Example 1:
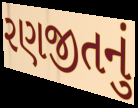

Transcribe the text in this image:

રણજીતનું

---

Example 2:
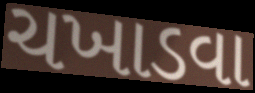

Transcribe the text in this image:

ચખાડવા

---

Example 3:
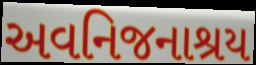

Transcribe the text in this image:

અવનિજનાશ્રય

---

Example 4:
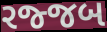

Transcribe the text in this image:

રજ્જબ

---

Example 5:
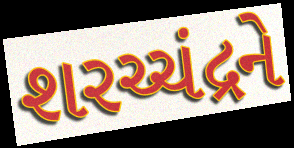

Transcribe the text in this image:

શરચ્ચંદ્રને